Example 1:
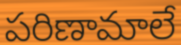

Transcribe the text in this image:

పరిణామాలే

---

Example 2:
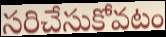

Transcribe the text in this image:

సరిచేసుకోవటం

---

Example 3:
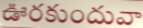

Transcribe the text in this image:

ఊరకుందువా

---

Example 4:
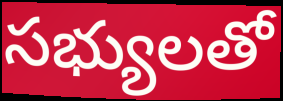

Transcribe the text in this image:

సభ్యులతో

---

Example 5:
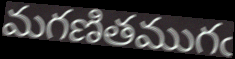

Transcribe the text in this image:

మగణితముగఁ